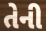
તેની